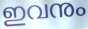
ഇവനും